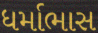
ધર્માભાસ